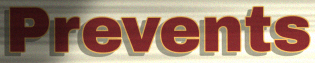
Prevents